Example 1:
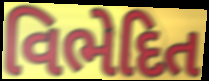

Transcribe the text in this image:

વિભેદિત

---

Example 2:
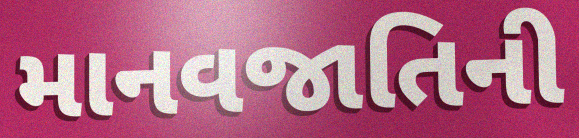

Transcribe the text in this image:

માનવજાતિની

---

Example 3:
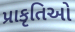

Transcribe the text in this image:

પ્રાકૃતિઓ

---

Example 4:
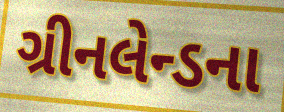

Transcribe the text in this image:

ગ્રીનલેન્ડના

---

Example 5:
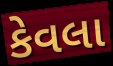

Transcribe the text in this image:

કેવલા